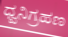
ಧ್ವನಿಗ್ರಹಣ